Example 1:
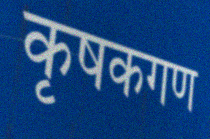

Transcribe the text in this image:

कृषकगण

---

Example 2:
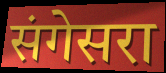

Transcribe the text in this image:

संगेसरा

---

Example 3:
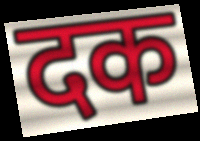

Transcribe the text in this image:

दक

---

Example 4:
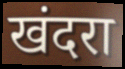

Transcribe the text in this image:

खंदरा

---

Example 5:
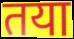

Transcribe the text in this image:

तया